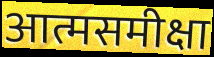
आत्मसमीक्षा